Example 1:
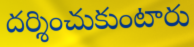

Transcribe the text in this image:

దర్శించుకుంటారు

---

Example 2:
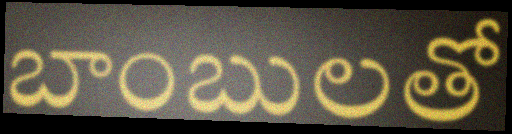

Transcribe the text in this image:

బాంబులతో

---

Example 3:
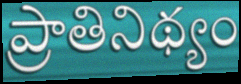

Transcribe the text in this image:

ప్రాతినిథ్యం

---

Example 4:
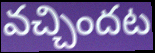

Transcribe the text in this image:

వచ్చిందట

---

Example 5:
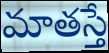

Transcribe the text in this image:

మాతస్తే